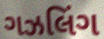
ગઝલિંગ